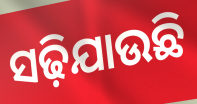
ସଢ଼ିଯାଉଛି